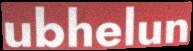
ubhelun